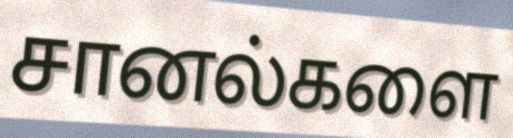
சானல்களை